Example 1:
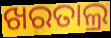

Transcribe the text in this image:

ଖରତାଲ୍ର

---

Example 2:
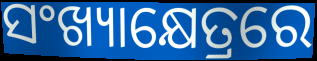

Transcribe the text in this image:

ସଂଖ୍ୟାକ୍ଷେତ୍ରରେ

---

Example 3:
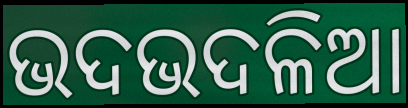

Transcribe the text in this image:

ଭଦଭଦଳିଆ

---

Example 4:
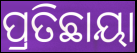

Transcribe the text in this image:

ପ୍ରତିଛାୟା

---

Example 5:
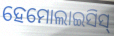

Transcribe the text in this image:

ହେମୋଲାଇସିସ୍